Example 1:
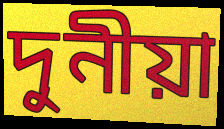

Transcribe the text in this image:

দুনীয়া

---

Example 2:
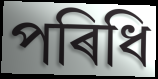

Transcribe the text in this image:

পৰিধি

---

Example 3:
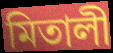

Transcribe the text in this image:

মিতালী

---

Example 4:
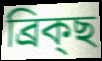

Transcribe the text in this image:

ব্ৰিক্ছ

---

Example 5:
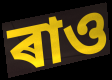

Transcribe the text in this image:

ৰাও